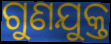
ଗୁଣଯୁକ୍ତ